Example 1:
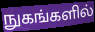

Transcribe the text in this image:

நுகங்களில்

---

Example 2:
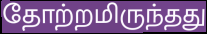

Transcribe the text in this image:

தோற்றமிருந்தது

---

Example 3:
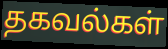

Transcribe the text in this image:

தகவல்கள்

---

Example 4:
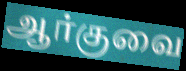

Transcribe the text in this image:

ஆர்குவை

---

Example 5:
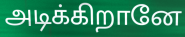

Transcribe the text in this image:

அடிக்கிறானே